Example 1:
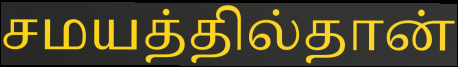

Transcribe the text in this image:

சமயத்தில்தான்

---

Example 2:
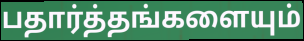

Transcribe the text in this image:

பதார்த்தங்களையும்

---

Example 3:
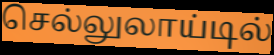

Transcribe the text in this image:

செல்லுலாய்டில்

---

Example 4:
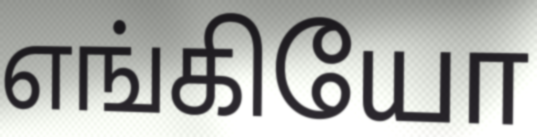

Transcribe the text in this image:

எங்கியோ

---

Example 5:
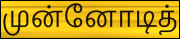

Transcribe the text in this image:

முன்னோடித்